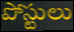
పోస్టులు